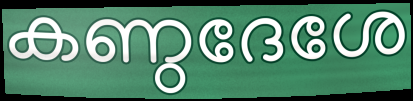
കണ്ഠദേശേ